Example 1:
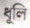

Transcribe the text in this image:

ধূলি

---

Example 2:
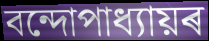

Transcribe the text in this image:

বন্দোপাধ্যায়ৰ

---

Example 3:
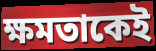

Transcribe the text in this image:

ক্ষমতাকেই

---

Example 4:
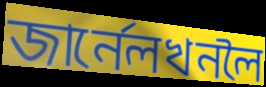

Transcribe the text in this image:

জাৰ্নেলখনলৈ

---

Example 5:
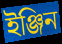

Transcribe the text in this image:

ইঞ্জিন